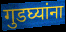
गुडघ्यांना